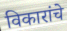
विकारांचे